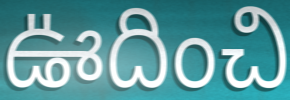
ఊదించి